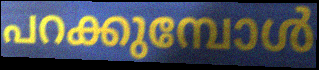
പറക്കുമ്പോൾ